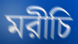
মরীচি